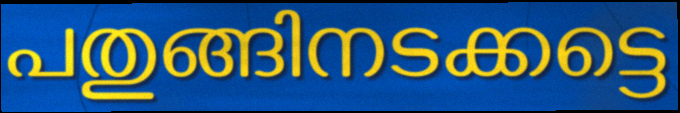
പതുങ്ങിനടക്കട്ടെ